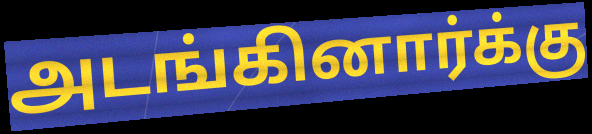
அடங்கினார்க்கு